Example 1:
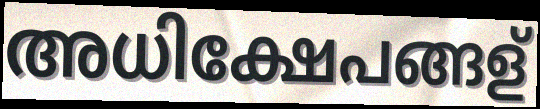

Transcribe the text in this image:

അധിക്ഷേപങ്ങള്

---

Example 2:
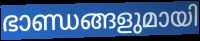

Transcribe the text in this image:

ഭാണ്ഡങ്ങളുമായി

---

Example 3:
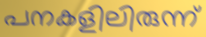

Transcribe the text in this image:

പനകളിലിരുന്ന്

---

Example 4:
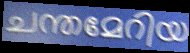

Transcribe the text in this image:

ചന്തമേറിയ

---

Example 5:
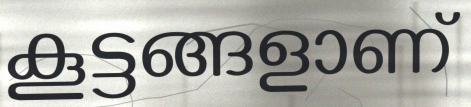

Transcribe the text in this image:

കൂട്ടങ്ങളാണ്